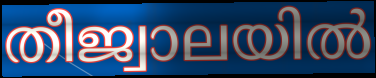
തീജ്വാലയിൽ